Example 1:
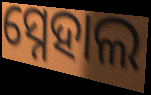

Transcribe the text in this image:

ସ୍ନେହାଲ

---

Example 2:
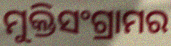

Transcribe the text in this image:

ମୁକ୍ତିସଂଗ୍ରାମର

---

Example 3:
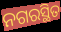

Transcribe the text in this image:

ନଗରସ୍ଥିତ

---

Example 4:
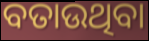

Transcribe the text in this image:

ବତାଉଥିବା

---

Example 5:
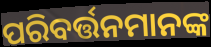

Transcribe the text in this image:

ପରିବର୍ତ୍ତନମାନଙ୍କ